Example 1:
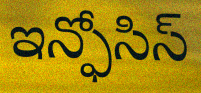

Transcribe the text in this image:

ఇన్ఫోసిస్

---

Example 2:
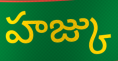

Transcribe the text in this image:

హజ్కు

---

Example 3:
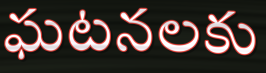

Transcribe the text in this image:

ఘటనలకు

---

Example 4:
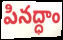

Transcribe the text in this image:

పినద్ధాం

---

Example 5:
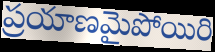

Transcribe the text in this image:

ప్రయాణమైపోయిరి